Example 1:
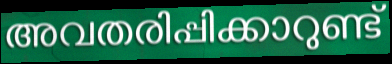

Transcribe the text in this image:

അവതരിപ്പിക്കാറുണ്ട്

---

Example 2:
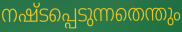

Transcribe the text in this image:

നഷ്ടപ്പെടുന്നതെന്തും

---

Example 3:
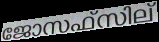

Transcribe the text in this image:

ജോസഫ്സില്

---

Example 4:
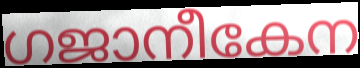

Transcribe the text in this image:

ഗജാനീകേന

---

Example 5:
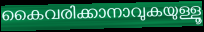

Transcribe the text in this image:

കൈവരിക്കാനാവുകയുള്ളൂ